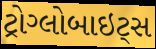
ટ્રોગ્લોબાઇટ્સ